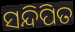
ସନ୍ଦିପିତ